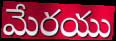
మేరయు